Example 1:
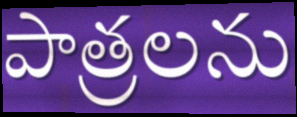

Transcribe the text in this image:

పాత్రలను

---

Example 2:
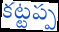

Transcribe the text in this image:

కట్టప్ప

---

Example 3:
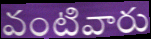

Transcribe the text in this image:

వంటివారు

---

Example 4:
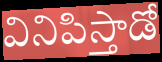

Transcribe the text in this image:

వినిపిస్తాడో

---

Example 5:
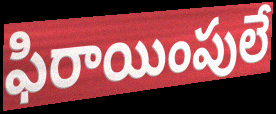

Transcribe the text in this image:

ఫిరాయింపులే